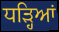
ਧੜ੍ਹਿਆਂ